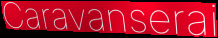
Caravanserai